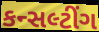
કન્સલ્ટીંગ